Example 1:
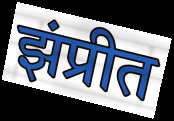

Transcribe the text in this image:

झंप्रीत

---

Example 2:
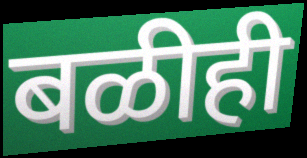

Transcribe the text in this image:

बळीही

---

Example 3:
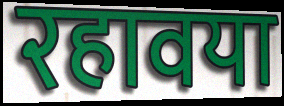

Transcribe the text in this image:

रहावया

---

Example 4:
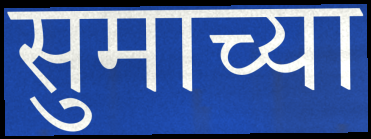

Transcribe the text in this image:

सुमाच्या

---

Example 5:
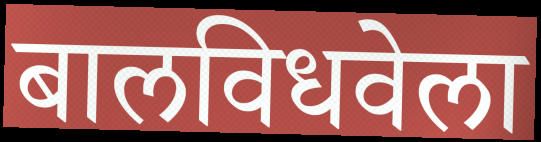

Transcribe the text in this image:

बालविधवेला